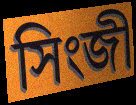
সিংজী